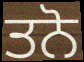
ਤਨੋ